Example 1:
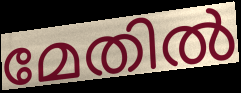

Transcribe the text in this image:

മേതിൽ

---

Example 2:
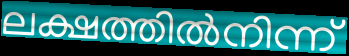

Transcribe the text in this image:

ലക്ഷത്തിൽനിന്ന്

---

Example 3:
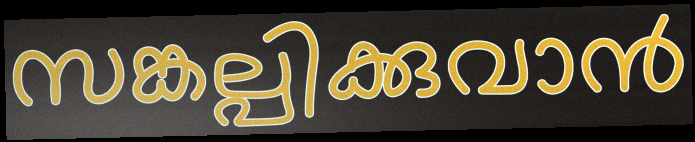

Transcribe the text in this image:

സങ്കല്പിക്കുവാൻ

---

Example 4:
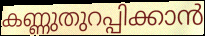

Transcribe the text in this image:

കണ്ണുതുറപ്പിക്കാൻ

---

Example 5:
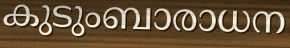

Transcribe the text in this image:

കുടുംബാരാധന